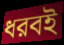
ধরবই